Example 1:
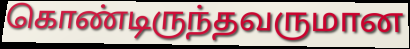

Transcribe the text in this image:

கொண்டிருந்தவருமான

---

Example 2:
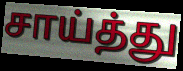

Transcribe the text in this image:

சாய்த்து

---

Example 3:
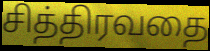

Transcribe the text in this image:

சித்திரவதை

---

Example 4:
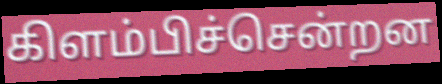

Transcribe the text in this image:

கிளம்பிச்சென்றன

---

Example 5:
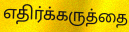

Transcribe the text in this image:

எதிர்க்கருத்தை